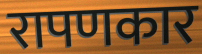
रापणकार